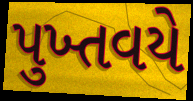
પુખ્તવયે